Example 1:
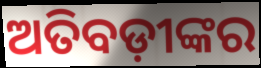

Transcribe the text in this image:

ଅତିବଡ଼ୀଙ୍କର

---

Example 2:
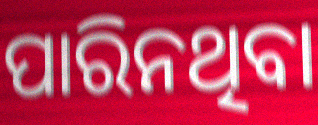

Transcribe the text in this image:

ପାରିନଥିବା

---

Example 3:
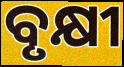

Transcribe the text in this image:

ବୃକ୍ଷୀ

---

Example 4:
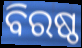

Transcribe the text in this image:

ବିରଷ୍ଠ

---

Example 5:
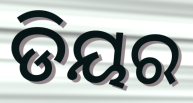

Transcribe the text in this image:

ଡିୟର